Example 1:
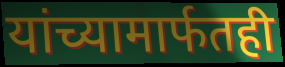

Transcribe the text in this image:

यांच्यामार्फतही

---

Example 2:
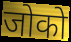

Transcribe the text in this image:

जोको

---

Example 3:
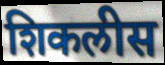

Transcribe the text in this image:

शिकलीस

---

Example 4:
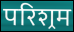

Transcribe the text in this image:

परिश्रम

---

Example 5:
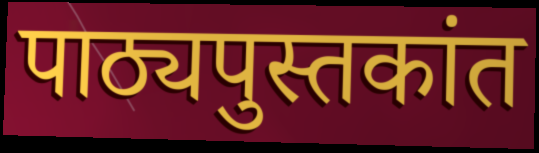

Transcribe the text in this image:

पाठ्यपुस्तकांत